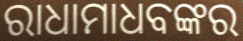
ରାଧାମାଧବଙ୍କର